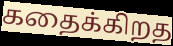
கதைக்கிறத